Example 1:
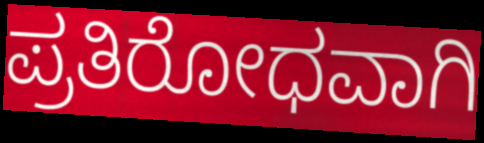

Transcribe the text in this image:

ಪ್ರತಿರೋಧವಾಗಿ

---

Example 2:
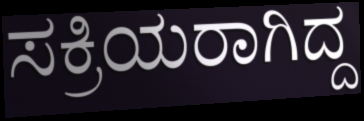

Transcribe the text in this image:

ಸಕ್ರಿಯರಾಗಿದ್ದ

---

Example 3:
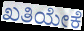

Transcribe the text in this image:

ಖತಿಯೇಕೆ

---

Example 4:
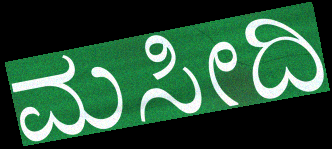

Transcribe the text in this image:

ಮಸೀದಿ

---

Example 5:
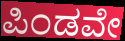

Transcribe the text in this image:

ಪಿಂಡವೇ